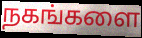
நகங்களை